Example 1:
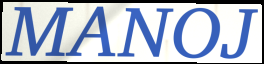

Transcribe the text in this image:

MANOJ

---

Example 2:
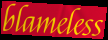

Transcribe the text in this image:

blameless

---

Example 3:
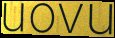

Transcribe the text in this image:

uovu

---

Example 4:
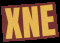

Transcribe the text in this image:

XNE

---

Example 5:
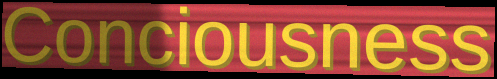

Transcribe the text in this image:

Conciousness